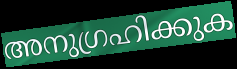
അനുഗ്രഹിക്കുക